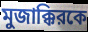
মুজাক্কিরকে